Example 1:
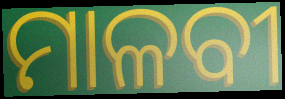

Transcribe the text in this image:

ମାଳବୀ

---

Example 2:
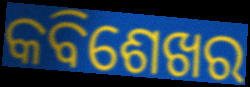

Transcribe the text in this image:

କବିଶେଖର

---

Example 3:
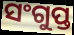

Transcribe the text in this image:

ସଂଗୁପ୍ତ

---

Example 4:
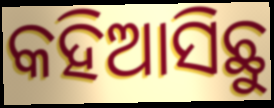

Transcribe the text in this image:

କହିଆସିଛୁ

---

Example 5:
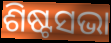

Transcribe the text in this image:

ଶିଷ୍ଟସଭା